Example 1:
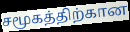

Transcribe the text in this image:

சமூகத்திற்கான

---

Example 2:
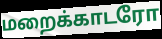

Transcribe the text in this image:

மறைக்காடரோ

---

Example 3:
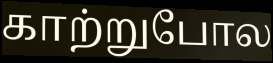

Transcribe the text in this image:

காற்றுபோல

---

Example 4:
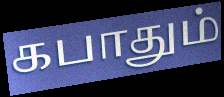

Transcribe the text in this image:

கபாதும்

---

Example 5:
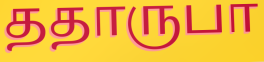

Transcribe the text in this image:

ததாருபா